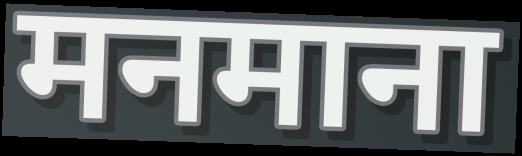
मनमाना